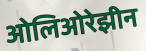
ओलिओरेझीन